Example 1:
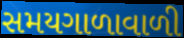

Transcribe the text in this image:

સમયગાળાવાળી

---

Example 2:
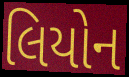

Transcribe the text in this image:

લિયોન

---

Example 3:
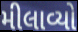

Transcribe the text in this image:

મીલાવ્યો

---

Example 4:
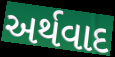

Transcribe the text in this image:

અર્થવાદ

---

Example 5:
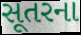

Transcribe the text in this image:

સૂતરના